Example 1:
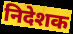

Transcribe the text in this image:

निदेशक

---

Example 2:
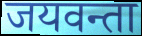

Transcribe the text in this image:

जयवन्ता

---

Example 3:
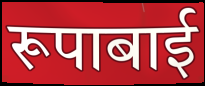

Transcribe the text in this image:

रूपाबाई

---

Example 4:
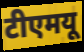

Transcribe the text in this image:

टीएमयू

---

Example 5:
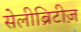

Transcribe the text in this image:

सेलीब्रिटीज़